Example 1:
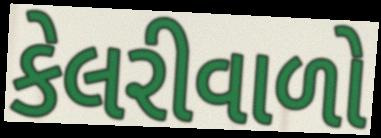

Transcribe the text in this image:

કેલરીવાળો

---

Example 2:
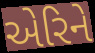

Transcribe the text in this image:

એરિને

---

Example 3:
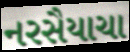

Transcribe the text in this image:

નરસૈયાચા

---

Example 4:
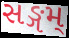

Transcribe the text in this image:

સઙ્ગમ્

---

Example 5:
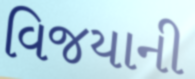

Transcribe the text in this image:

વિજયાની